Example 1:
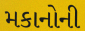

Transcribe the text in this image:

મકાનોની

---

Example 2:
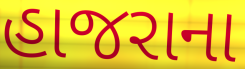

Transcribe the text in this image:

હાજરાના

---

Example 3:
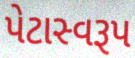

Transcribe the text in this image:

પેટાસ્વરૂપ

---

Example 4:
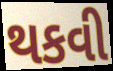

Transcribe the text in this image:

થકવી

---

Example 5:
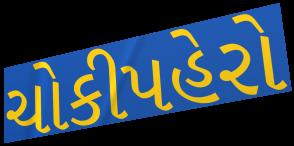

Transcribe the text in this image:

ચોકીપહેરો